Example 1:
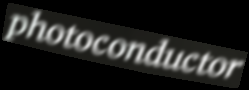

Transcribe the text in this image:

photoconductor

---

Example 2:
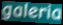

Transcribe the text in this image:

galeria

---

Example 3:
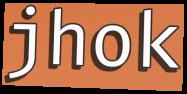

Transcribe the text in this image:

jhok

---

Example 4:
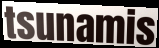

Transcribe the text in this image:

tsunamis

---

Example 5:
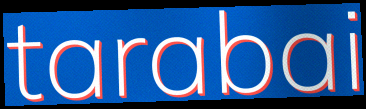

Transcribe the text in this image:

tarabai